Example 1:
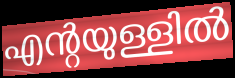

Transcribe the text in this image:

എന്റയുള്ളിൽ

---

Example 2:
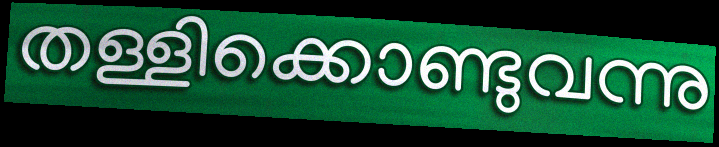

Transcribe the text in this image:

തള്ളിക്കൊണ്ടുവന്നു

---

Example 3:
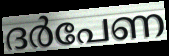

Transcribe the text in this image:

ദർപേണ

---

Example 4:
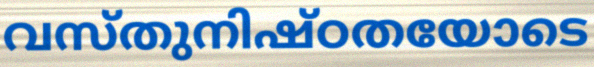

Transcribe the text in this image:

വസ്തുനിഷ്ഠതയോടെ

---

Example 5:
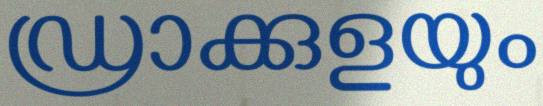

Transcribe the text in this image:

ഡ്രാക്കുളയും